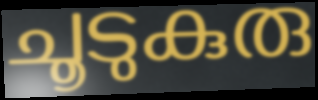
ചൂടുകുരു